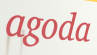
agoda